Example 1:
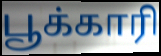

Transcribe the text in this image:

பூக்காரி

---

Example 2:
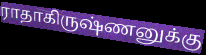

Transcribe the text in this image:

ராதாகிருஷ்ணனுக்கு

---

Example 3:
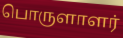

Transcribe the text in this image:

பொருளாளர்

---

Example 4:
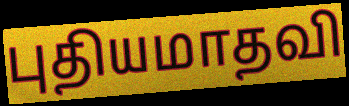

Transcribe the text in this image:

புதியமாதவி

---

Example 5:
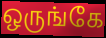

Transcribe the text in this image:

ஒருங்கே